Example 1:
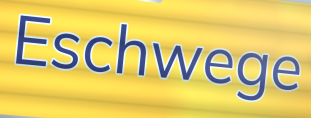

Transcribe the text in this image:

Eschwege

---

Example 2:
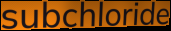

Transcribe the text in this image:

subchloride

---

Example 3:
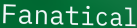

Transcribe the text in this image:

Fanatical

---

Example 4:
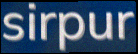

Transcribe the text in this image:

sirpur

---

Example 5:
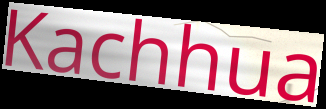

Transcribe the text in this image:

Kachhua